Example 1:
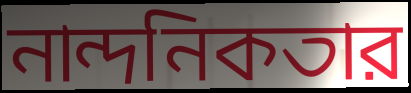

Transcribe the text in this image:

নান্দনিকতার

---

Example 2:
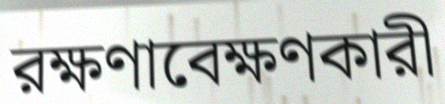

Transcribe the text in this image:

রক্ষণাবেক্ষণকারী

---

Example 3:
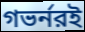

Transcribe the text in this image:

গভর্নরই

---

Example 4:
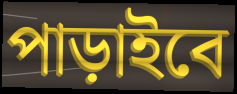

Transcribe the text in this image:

পাড়াইবে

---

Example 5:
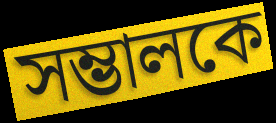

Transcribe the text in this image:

সম্ভালকে